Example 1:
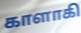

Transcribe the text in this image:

காளாகி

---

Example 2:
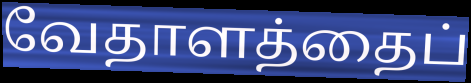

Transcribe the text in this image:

வேதாளத்தைப்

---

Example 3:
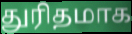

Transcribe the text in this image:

துரிதமாக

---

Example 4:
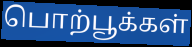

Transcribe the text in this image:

பொற்பூக்கள்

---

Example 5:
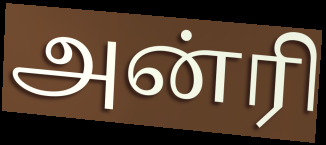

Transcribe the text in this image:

அன்ரி